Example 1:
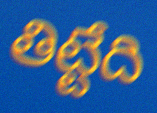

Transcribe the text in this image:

తిట్టేది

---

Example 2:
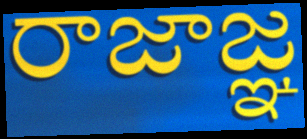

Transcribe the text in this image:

రాజాజ్ఞ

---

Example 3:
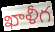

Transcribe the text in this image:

ఖాళీగ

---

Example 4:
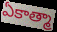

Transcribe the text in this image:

ఏకాత్మా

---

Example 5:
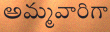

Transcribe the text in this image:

అమ్మవారిగా